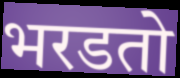
भरडतो